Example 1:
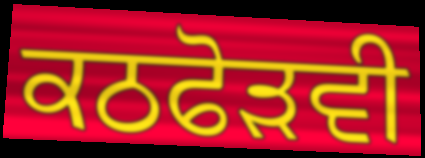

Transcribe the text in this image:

ਕਠਫੋੜਵੀ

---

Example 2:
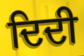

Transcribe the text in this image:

ਦਿਦੀ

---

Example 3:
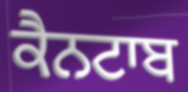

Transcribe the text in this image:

ਕੈਨਟਾਬ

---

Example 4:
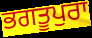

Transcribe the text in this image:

ਭਗਤੂਪੁਰਾ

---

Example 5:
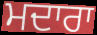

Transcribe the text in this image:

ਮਦਾਰਾ